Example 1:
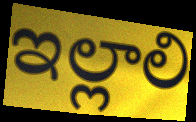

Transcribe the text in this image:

ఇల్లాలి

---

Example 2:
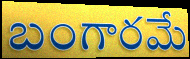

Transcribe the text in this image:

బంగారమే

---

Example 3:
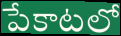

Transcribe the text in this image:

పేకాటలో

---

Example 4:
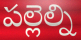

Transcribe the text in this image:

పల్లెల్ని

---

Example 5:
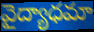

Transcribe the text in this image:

వైద్యాధమా